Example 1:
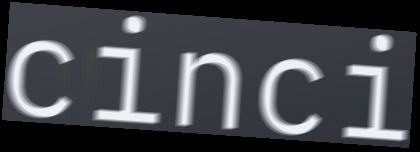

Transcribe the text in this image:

cinci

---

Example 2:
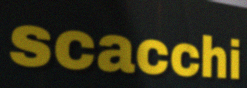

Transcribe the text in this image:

scacchi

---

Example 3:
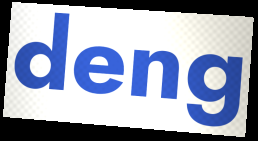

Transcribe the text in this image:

deng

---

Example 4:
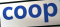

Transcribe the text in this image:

coop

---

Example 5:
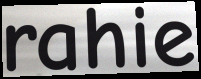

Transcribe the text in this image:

rahie